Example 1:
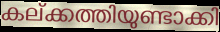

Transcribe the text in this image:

കല്ക്കത്തിയുണ്ടാക്കി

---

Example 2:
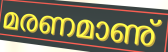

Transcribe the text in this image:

മരണമാണു്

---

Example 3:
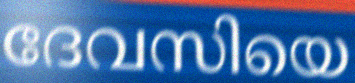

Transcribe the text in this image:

ദേവസിയെ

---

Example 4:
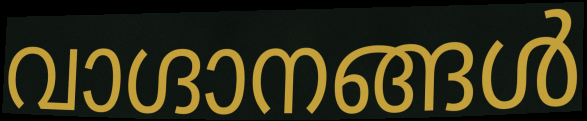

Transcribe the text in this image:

വാഗ്ദാനങ്ങൾ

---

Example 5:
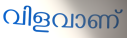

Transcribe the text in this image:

വിളവാണ്